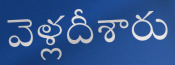
వెళ్లదీశారు